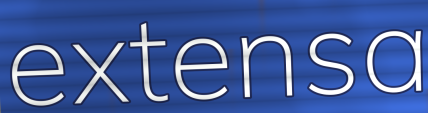
extensa